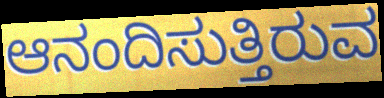
ಆನಂದಿಸುತ್ತಿರುವ